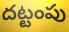
దట్టంపు